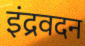
इंद्रवदन